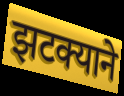
झटक्याने